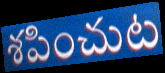
శపించుట